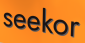
seekor